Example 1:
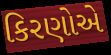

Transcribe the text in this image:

કિરણોએ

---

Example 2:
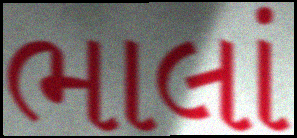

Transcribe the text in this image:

ભાલાં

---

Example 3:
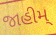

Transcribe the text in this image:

જાહીમ્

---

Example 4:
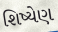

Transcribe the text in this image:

શિષ્યેણ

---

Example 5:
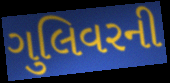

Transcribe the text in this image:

ગુલિવરની